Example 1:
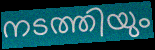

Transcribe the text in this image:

നടത്തിയും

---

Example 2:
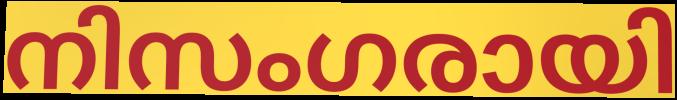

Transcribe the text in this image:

നിസംഗരായി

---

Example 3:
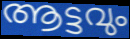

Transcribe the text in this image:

ആട്ടവും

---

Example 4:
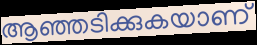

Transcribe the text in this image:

ആഞ്ഞടിക്കുകയാണ്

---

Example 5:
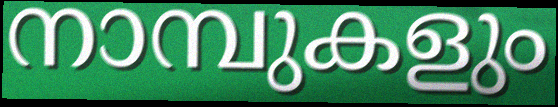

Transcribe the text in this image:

നാമ്പുകളും